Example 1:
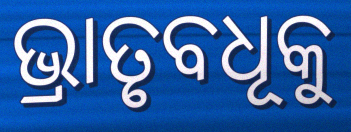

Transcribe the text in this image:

ଭ୍ରାତୃବଧୂକୁ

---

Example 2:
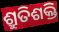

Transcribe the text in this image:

ଶ୍ରୁତିଶକ୍ତି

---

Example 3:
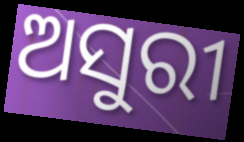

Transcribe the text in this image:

ଅସୁରୀ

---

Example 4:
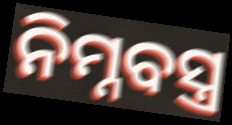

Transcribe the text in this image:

ନିମ୍ନବସ୍ତ୍ର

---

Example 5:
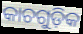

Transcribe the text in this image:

କାଚଗୁଡ଼ିକ